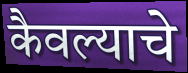
कैवल्याचे